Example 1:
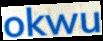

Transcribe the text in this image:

okwu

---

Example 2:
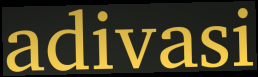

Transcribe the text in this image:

adivasi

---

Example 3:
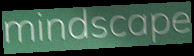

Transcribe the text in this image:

mindscape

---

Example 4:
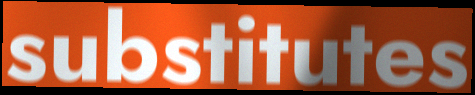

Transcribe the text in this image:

substitutes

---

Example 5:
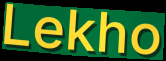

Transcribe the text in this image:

Lekho